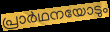
പ്രാർഥനയോടും